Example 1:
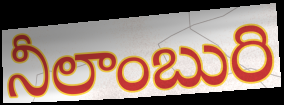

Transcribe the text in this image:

నీలాంబురి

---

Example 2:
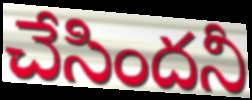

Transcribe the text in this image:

చేసిందనీ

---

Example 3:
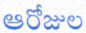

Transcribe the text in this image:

ఆరోజుల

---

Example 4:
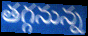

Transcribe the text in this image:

తగ్గనున్న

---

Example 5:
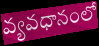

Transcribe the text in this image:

వ్యవధానంలో